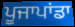
ਪੂਜਾਪਾਂਡਾ